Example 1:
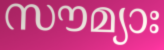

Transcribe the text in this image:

സൗമ്യാഃ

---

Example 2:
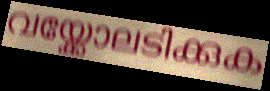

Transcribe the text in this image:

വയ്ക്കോലടിക്കുക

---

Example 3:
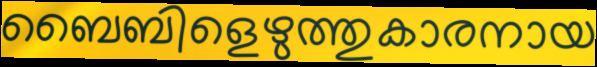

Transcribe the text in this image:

ബൈബിളെഴുത്തുകാരനായ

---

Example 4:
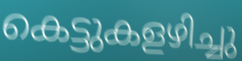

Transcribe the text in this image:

കെട്ടുകളഴിച്ചു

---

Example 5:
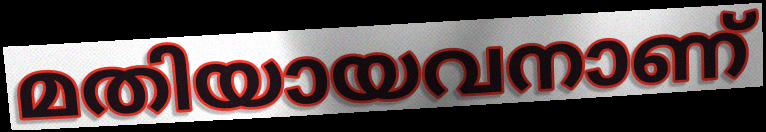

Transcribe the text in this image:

മതിയായവനാണ്